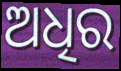
ଅଧିର